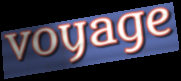
voyage